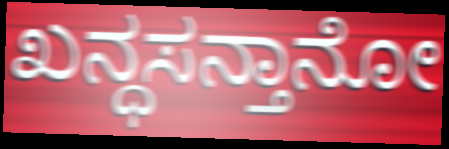
ಖನ್ಧಸನ್ತಾನೋ